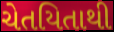
ચેતયિતાથી